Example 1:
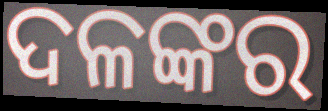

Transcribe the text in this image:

ଦଳଙ୍କର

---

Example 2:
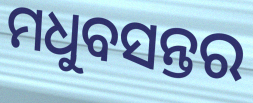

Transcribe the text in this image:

ମଧୁବସନ୍ତର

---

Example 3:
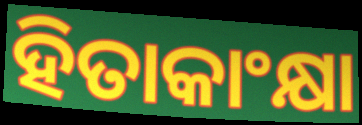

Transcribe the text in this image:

ହିତାକାଂକ୍ଷା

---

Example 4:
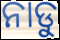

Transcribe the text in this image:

ନାଡୁ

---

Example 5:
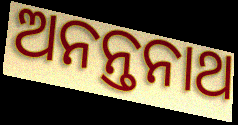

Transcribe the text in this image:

ଅନନ୍ତନାଥ